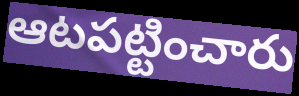
ఆటపట్టించారు